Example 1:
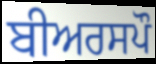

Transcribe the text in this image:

ਬੀਅਰਸਪੌ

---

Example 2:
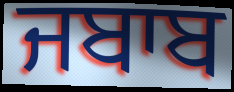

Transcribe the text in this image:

ਜਬਾਬ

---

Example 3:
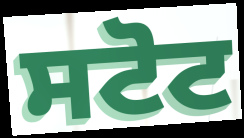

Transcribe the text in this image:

ਸਟੋਟ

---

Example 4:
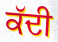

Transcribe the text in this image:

ਕੱਦੀ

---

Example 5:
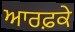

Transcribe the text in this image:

ਆਰਫ਼ਕੇ